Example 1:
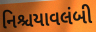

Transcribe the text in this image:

નિશ્ચયાવલંબી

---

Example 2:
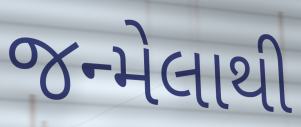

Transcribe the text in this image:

જન્મેલાથી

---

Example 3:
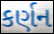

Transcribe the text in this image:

કર્ણન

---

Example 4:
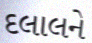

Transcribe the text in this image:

દલાલને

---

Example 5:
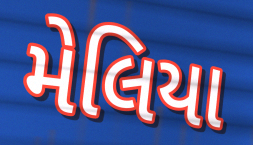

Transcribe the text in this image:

મેલિયા